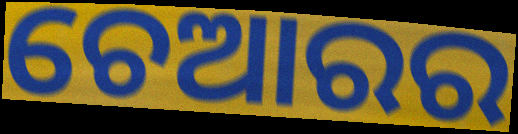
ଚେଆରର